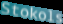
Stokols